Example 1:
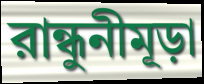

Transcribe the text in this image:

রান্ধুনীমূড়া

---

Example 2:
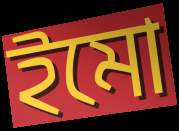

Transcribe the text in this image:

ইমো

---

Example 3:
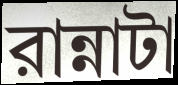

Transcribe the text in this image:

রান্নাটা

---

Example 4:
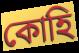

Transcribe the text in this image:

কোহি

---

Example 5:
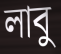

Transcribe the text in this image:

লাবু